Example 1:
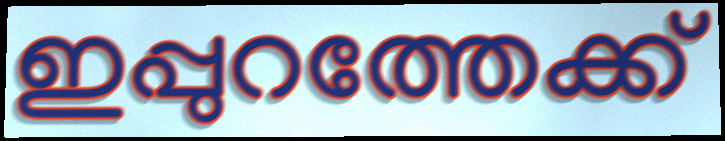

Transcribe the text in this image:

ഇപ്പുറത്തേക്ക്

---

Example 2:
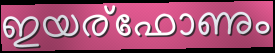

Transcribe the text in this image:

ഇയര്ഫോണും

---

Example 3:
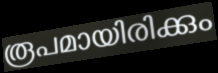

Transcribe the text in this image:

രൂപമായിരിക്കും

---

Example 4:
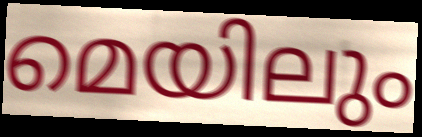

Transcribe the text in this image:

മെയിലും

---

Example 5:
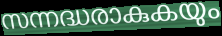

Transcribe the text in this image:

സന്നദ്ധരാകുകയും